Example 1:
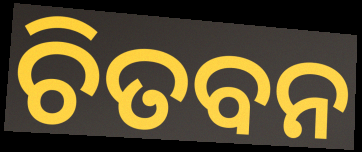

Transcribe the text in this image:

ଚିତବନ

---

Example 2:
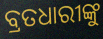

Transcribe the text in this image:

ବ୍ରତଧାରୀଙ୍କୁ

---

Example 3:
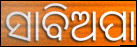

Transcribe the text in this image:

ସାବିଅପା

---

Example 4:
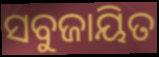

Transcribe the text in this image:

ସବୁଜାୟିତ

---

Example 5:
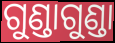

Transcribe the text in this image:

ଗୁଣ୍ଡାଗୁଣ୍ଡା